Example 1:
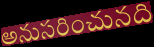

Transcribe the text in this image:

అనుసరించునది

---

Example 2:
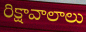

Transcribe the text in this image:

రిక్షావాలాలు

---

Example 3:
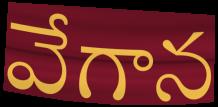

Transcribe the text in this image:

వేగాన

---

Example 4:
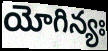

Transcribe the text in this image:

యోగిన్యః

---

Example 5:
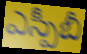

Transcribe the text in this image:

ఎస్పీబీ